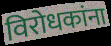
विरोधकांना